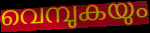
വെമ്പുകയും